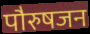
पौरुषजन